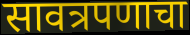
सावत्रपणाचा